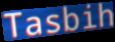
Tasbih